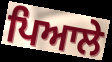
ਪਿਆਲੇ